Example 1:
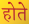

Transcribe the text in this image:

होते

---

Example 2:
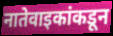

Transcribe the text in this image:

नातेवाइकांकडून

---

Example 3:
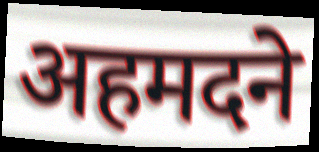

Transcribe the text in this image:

अहमदने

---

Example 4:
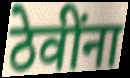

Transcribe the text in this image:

ठेवींना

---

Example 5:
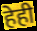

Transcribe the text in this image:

हेही